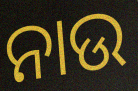
ନାଉ